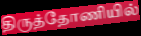
திருத்தோணியில்